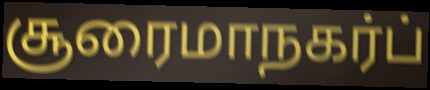
சூரைமாநகர்ப்